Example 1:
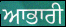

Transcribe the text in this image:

ਆਭਾਰੀ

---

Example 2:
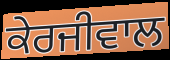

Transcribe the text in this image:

ਕੇਰਜੀਵਾਲ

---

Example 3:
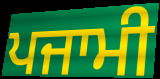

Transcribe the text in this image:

ਪਜਾਮੀ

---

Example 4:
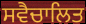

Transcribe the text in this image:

ਸਵੈਚਾਲਿਤ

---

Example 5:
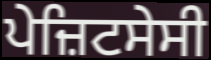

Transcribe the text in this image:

ਪੇਜ਼ਿਟਸੇਸੀ